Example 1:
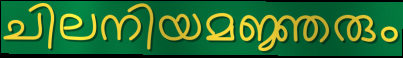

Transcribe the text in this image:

ചിലനിയമജ്ഞരും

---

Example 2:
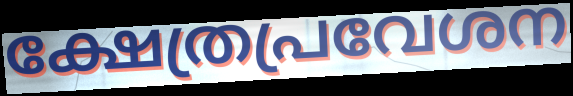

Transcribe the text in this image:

ക്ഷേത്രപ്രവേശന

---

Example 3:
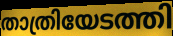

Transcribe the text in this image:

താത്രിയേടത്തി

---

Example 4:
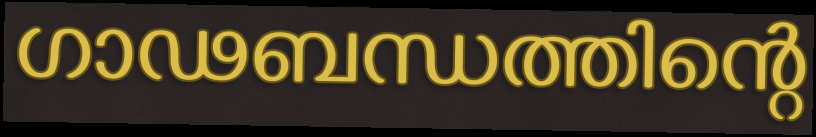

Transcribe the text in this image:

ഗാഢബന്ധത്തിന്റെ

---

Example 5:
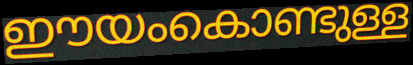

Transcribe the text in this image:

ഈയംകൊണ്ടുള്ള